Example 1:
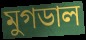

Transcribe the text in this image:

মুগডাল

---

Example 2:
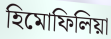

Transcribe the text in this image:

হিমোফিলিয়া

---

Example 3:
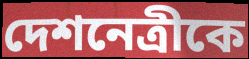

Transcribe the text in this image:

দেশনেত্রীকে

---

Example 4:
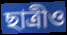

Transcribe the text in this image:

ছাত্রীও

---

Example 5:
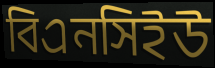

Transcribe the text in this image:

বিএনসিইউ